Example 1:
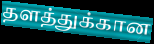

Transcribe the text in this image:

தளத்துக்கான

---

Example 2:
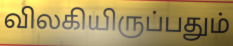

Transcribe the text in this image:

விலகியிருப்பதும்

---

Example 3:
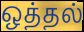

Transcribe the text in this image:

ஒத்தல்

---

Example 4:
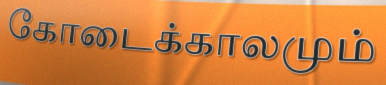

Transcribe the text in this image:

கோடைக்காலமும்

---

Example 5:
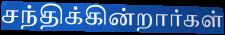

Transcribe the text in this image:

சந்திக்கின்றார்கள்